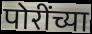
पोरींच्या